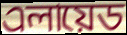
এলায়েড